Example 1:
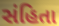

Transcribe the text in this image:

સંહિતા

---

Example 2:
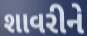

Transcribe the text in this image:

શાવરીને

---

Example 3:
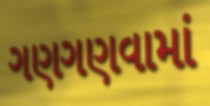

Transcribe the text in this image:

ગણગણવામાં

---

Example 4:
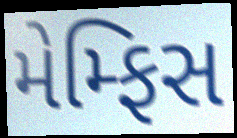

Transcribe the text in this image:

મેમ્ફિસ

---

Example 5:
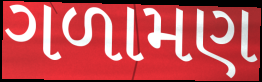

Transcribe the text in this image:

ગળામણ